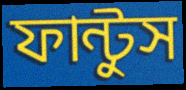
ফান্টুস